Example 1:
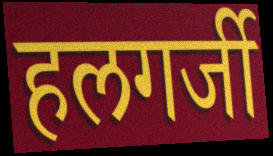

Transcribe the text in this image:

हलगर्जी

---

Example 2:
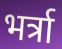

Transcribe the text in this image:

भर्त्रा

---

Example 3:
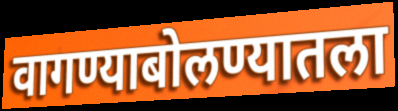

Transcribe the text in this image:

वागण्याबोलण्यातला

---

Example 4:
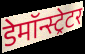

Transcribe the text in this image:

डेमॉन्स्ट्रेटर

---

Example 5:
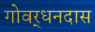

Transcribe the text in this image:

गोवर्धनदास